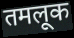
तमलूक